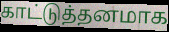
காட்டுத்தனமாக